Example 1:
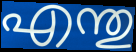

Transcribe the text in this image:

എന്തു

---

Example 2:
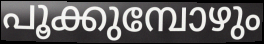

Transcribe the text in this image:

പൂക്കുമ്പോഴും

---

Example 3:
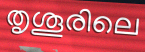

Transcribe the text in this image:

തൃശൂരിലെ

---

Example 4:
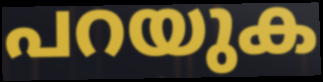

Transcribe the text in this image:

പറയുക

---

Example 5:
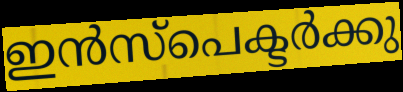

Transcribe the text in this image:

ഇൻസ്പെക്ടർക്കു